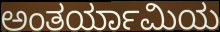
ಅಂತರ್ಯಾಮಿಯ